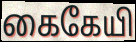
கைகேயி